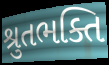
શ્રુતભક્તિ